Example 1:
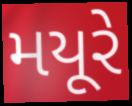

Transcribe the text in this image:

મયૂરે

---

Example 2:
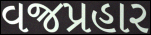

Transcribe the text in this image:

વજ્રપ્રહાર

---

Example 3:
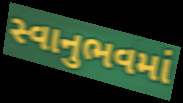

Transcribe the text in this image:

સ્વાનુભવમાં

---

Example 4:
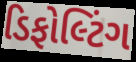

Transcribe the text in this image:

ડિફોલ્ટિંગ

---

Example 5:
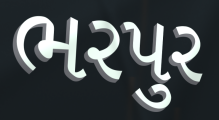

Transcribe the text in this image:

ભરપુર